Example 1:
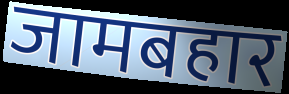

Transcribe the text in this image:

जामबहार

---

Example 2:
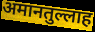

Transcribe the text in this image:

अमानतुल्लाह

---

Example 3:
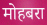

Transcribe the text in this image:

मोहबरा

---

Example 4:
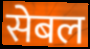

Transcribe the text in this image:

सेबल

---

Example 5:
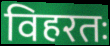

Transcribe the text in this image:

विहरतः